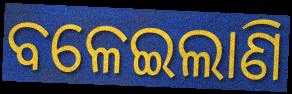
ବଳେଇଲାଣି